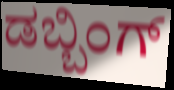
ಡಬ್ಬಿಂಗ್